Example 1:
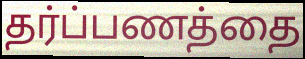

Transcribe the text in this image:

தர்ப்பணத்தை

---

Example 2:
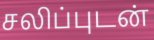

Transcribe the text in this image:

சலிப்புடன்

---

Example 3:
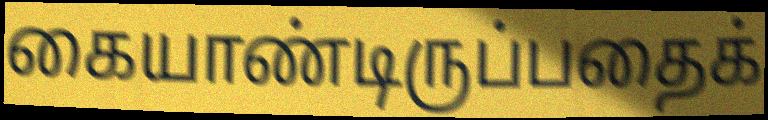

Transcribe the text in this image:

கையாண்டிருப்பதைக்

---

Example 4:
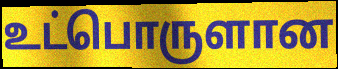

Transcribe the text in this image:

உட்பொருளான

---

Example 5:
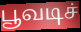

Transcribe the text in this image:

பூவடிச்